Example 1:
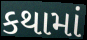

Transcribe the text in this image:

કથામાં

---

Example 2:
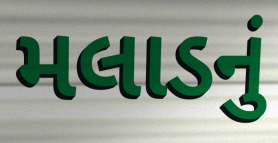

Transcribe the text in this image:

મલાડનું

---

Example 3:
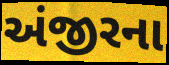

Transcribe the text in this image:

અંજીરના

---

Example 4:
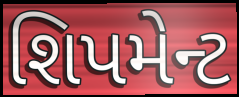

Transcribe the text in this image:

શિપમેન્ટ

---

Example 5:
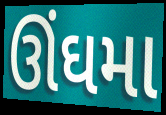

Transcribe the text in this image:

ઊંઘમા